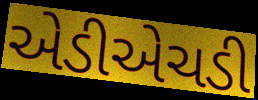
એડીએચડી